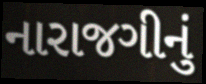
નારાજગીનું